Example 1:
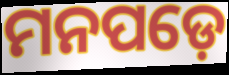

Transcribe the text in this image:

ମନପଡ଼େ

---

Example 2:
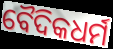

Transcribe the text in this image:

ବୈଦିକଧର୍ମ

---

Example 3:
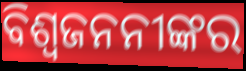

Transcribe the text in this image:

ବିଶ୍ୱଜନନୀଙ୍କର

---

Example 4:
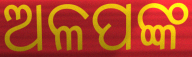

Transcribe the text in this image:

ଅଳପଙ୍କ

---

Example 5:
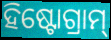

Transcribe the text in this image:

ହିଷ୍ଟୋଗ୍ରାମ୍